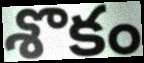
శొకం